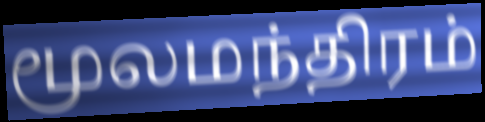
மூலமந்திரம்